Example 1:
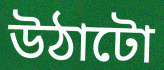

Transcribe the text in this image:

উঠাটো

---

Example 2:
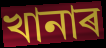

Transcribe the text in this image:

খানাৰ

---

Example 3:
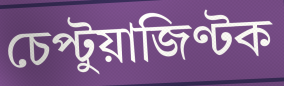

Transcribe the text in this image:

চেপ্টুয়াজিণ্টক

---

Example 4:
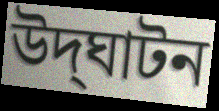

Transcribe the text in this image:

উদ্‌ঘাটন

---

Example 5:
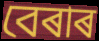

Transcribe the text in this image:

বেৰাৰ